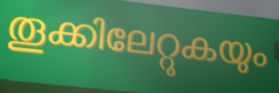
തൂക്കിലേറ്റുകയും